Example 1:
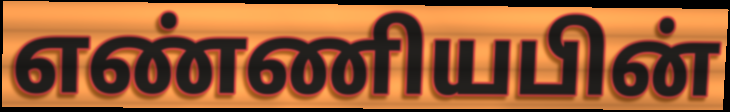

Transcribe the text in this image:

எண்ணியபின்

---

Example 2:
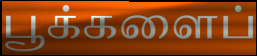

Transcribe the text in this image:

பூக்களைப்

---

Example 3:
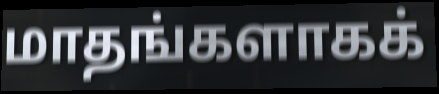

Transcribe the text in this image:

மாதங்களாகக்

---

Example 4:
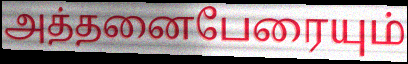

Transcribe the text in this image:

அத்தனைபேரையும்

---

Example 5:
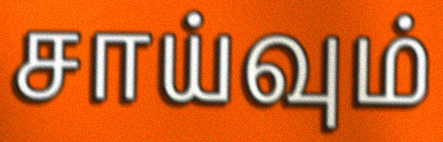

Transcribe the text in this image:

சாய்வும்